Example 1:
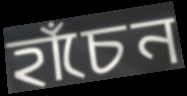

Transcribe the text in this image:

হাঁচেন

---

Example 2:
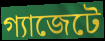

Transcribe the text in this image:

গ্যাজেটে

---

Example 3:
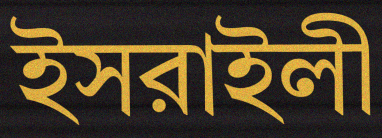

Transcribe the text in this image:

ইসরাইলী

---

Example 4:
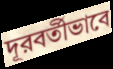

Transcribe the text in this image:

দূরবর্তীভাবে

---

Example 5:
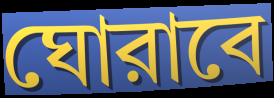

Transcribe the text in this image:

ঘোরাবে